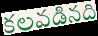
కలవడినది